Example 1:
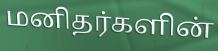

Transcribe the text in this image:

மனிதர்களின்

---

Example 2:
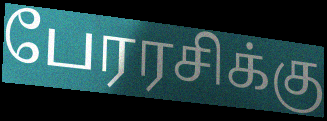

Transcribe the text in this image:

பேரரசிக்கு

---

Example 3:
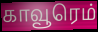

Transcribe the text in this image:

காவூரெம்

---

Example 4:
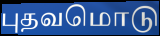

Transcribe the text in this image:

புதவமொடு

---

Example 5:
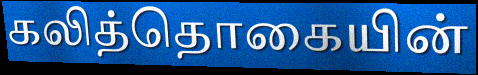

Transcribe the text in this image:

கலித்தொகையின்